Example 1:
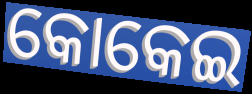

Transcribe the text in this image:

କୋକେଇ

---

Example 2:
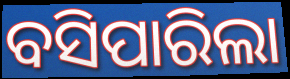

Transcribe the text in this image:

ବସିପାରିଲା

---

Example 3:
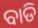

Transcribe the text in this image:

ବାଡି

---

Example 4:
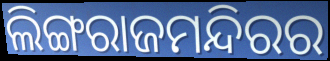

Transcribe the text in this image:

ଲିଙ୍ଗରାଜମନ୍ଦିରର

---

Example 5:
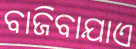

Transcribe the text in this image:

ବାଜିବାଯାଏ